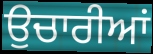
ਉਚਾਰੀਆਂ